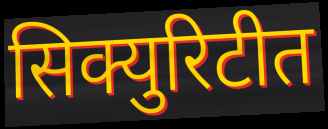
सिक्युरिटीत